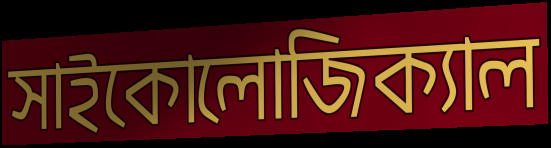
সাইকোলোজিক্যাল